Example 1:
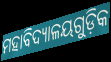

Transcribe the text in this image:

ମହାବିଦ୍ୟାଳୟଗୁଡ଼ିକ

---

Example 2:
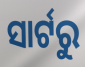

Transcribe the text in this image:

ସାର୍ଟରୁ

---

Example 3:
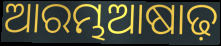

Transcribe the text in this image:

ଆରମ୍ଭଆଷାଢ଼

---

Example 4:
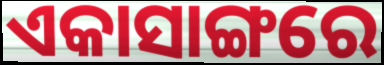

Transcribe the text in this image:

ଏକାସାଙ୍ଗରେ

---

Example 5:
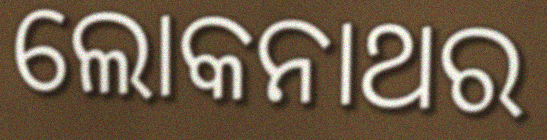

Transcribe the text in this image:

ଲୋକନାଥର